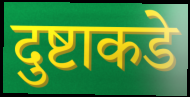
दुष्टाकडे